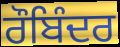
ਰੌਬਿੰਦਰ